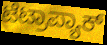
ಟೆಟ್ರಾಪ್ಯಾಕ್